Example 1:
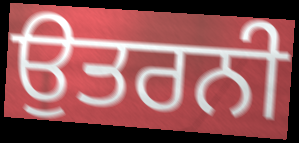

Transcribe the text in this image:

ਉਤਰਨੀ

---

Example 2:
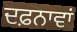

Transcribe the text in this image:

ਦਫ਼ਨਾਵਾਂ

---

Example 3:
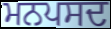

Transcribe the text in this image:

ਮਨਪਸਦ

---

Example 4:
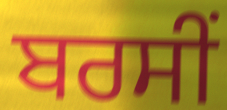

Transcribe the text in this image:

ਬਰਸੀਂ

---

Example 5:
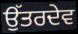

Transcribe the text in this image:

ਉੱਤਰਦੇਵ